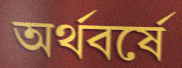
অর্থবর্ষে